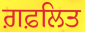
ਗ਼ਫ਼ਲਿਤ